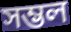
সম্ভল